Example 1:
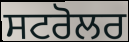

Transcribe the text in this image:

ਸਟਰੋਲਰ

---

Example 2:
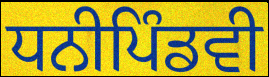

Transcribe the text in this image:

ਧਨੀਪਿੰਡਵੀ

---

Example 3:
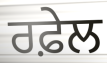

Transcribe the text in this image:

ਰਫ਼ੇਲ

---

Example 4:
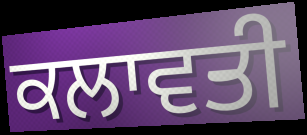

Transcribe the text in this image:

ਕਲਾਵਤੀ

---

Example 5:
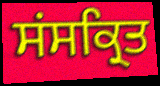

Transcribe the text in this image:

ਸਂਸਕ੍ਰਿਤ